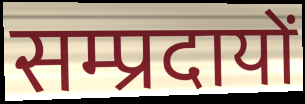
सम्प्रदायों